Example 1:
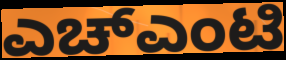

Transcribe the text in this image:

ಎಚ್ಎಂಟಿ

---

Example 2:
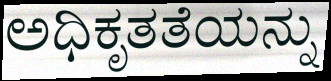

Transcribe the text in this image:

ಅಧಿಕೃತತೆಯನ್ನು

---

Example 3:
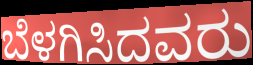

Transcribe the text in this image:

ಬೆಳಗಿಸಿದವರು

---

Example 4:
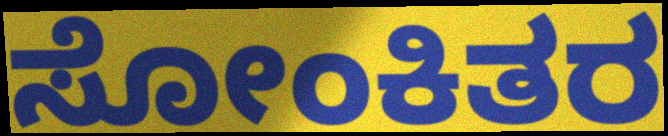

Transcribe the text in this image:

ಸೋಂಕಿತರ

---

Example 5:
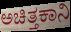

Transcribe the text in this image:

ಅಚಿತ್ತಕಾನಿ